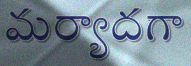
మర్యాదగా